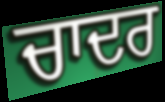
ਚਾਦਰ